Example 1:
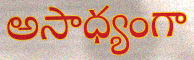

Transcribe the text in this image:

అసాధ్యంగా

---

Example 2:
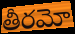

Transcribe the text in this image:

తీరమో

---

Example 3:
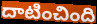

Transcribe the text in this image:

దాటించింది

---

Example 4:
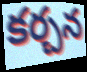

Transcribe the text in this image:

కర్చన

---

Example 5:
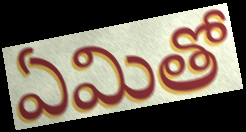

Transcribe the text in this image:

ఏమితో